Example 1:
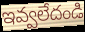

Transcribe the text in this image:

ఇవ్వలేదండి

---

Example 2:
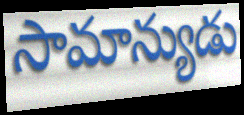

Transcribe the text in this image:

సామాన్యుడు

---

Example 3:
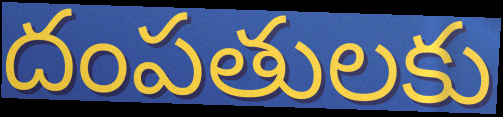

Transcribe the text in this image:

దంపతులకు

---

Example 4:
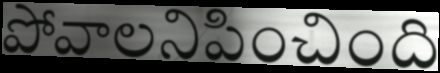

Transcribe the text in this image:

పోవాలనిపించింది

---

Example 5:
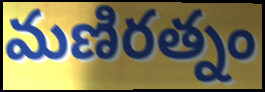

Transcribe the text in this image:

మణిరత్నం